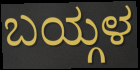
ಬಯ್ಗಳ